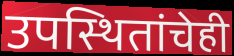
उपस्थितांचेही